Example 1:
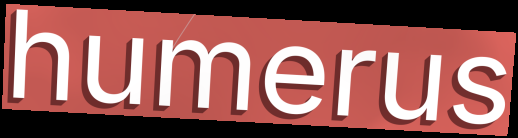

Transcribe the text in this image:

humerus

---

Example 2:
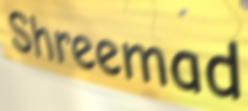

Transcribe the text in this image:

Shreemad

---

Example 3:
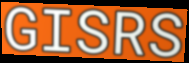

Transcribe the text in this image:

GISRS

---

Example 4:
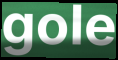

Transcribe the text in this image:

gole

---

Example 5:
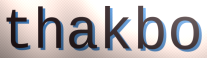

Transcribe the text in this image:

thakbo